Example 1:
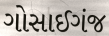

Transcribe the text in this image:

ગોસાઈગંજ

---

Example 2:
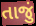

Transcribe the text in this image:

તાજું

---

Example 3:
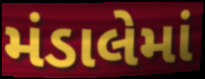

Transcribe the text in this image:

મંડાલેમાં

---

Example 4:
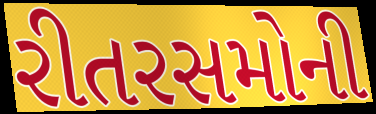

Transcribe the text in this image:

રીતરસમોની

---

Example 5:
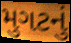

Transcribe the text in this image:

મુગટનું